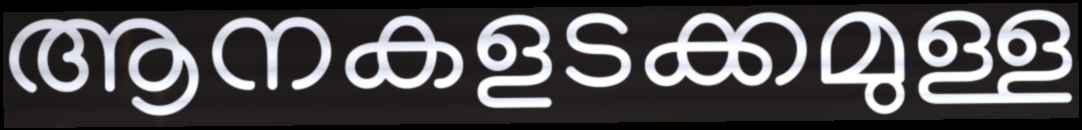
ആനകളടക്കമുള്ള